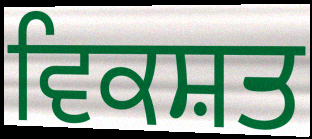
ਵਿਕਸ਼ਤ